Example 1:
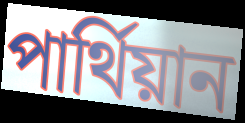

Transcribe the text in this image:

পার্থিয়ান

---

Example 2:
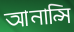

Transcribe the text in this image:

আনান্সি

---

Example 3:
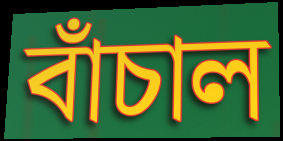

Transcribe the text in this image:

বাঁচাল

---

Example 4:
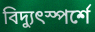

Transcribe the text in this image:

বিদ্যুৎস্পর্শে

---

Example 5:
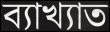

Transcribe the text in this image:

ব্যাখ্যাত